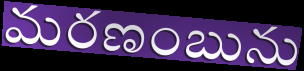
మరణంబును